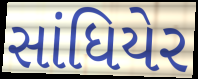
સાંધિયેર